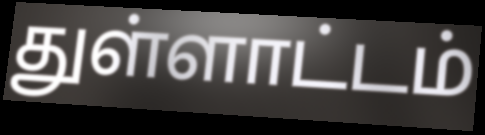
துள்ளாட்டம்